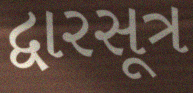
દ્વારસૂત્ર